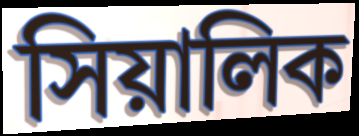
সিয়ালিক